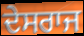
ਦੇਸਰਾਜ